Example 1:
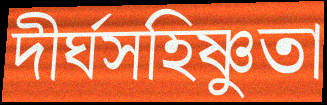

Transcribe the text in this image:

দীর্ঘসহিষ্ণুতা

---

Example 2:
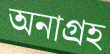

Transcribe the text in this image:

অনাগ্রহ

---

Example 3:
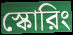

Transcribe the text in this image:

স্কোরিং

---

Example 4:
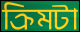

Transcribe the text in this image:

ক্রিমটা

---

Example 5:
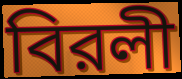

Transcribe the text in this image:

বিরলী